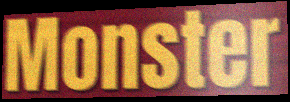
Monster